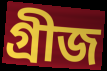
গ্ৰীজ